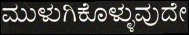
ಮುಳುಗಿಕೊಳ್ಳುವುದೇ